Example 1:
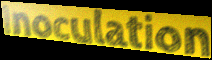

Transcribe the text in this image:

Inoculation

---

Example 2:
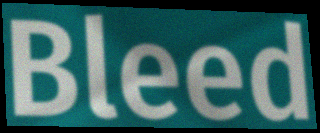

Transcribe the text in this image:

Bleed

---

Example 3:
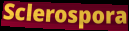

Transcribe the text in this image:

Sclerospora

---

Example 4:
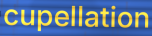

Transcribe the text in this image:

cupellation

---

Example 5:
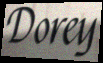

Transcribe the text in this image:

Dorey